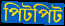
পিটপিট